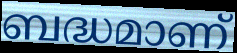
ബദ്ധമാണ്